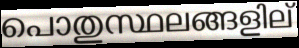
പൊതുസ്ഥലങ്ങളില്